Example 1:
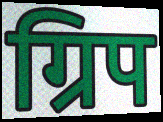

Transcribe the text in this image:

ग्रिप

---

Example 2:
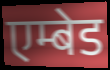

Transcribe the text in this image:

एम्बेड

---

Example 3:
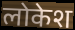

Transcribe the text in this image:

लोकेश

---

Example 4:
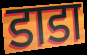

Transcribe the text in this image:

डाडा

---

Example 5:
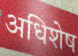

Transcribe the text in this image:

अधिशेष